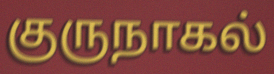
குருநாகல்